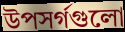
উপসর্গগুলো